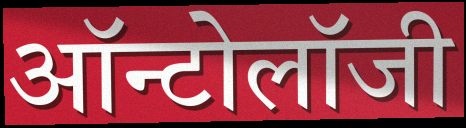
ऑन्टोलॉजी